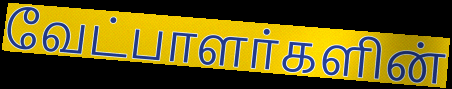
வேட்பாளர்களின்